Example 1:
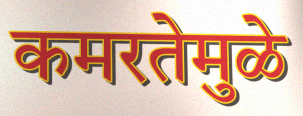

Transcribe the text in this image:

कमरतेमुळे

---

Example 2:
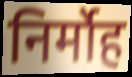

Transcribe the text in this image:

निर्मोह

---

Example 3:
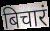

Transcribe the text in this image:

बिचारं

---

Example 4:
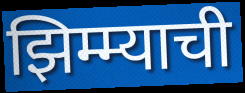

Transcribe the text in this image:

झिम्म्याची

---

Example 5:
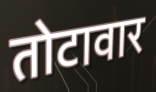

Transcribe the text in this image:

तोटावार